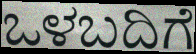
ಒಳಬದಿಗೆ